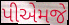
પીએમજે